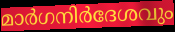
മാർഗനിർദേശവും